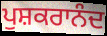
ਪੁਸ਼ਕਰਾਨੰਦ